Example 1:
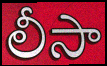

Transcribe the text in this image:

లీసా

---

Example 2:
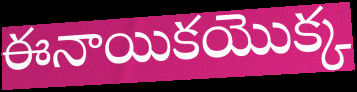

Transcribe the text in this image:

ఈనాయికయొక్క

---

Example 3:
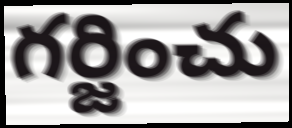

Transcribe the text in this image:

గర్జించు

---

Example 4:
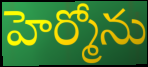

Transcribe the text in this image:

హెర్మోను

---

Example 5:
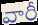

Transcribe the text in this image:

వారీ